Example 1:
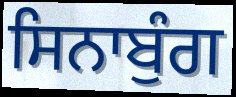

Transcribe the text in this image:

ਸਿਨਾਬੁੰਗ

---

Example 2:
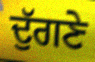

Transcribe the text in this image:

ਦੁੱਗਣੇ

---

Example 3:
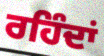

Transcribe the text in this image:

ਰਹਿੰਦਾਂ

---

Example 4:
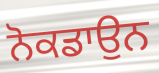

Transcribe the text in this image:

ਨੋਕਡਾਉਨ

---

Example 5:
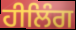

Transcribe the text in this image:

ਹੀਲਿੰਗ